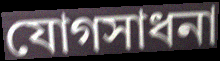
যোগসাধনা